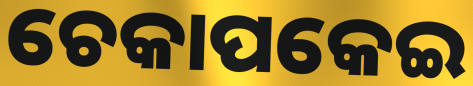
ଚେକାପକେଇ